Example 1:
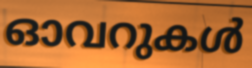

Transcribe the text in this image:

ഓവറുകൾ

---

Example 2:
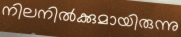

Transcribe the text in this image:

നിലനിൽക്കുമായിരുന്നു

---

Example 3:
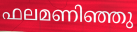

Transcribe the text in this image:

ഫലമണിഞ്ഞു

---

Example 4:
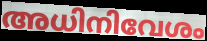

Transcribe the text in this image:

അധിനിവേശം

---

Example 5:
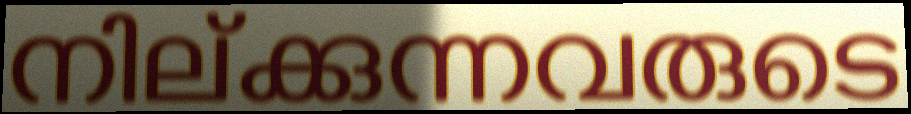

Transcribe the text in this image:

നില്ക്കുന്നവരുടെ